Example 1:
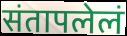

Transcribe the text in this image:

संतापलेलं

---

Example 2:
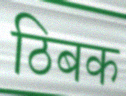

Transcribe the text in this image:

ठिबक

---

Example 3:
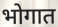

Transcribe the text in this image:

भोगात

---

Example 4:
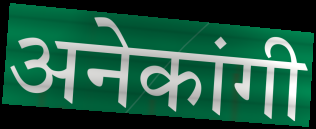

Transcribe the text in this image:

अनेकांगी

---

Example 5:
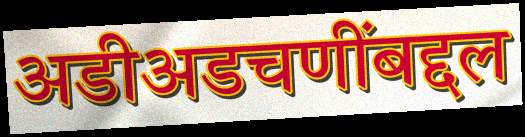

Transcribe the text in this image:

अडीअडचणींबद्दल